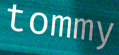
tommy